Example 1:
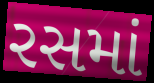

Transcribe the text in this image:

રસમાં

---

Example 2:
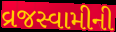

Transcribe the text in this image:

વ્રજસ્વામીની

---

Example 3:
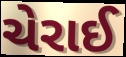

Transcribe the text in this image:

ચેરાઈ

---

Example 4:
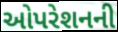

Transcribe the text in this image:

ઓપરેશનની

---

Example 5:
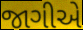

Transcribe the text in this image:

જાગીએ